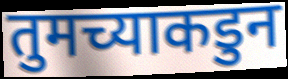
तुमच्याकडुन